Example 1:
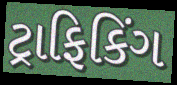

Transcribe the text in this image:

ટ્રાફિકિંગ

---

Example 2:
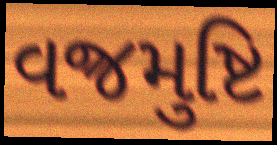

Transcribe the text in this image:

વજ્રમુષ્ટિ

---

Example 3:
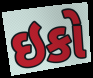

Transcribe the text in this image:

ઇકો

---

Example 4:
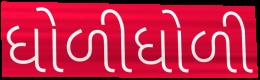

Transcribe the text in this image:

ધોળીધોળી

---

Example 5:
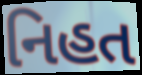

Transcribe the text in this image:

નિહત